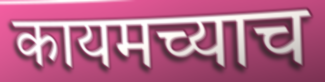
कायमच्याच